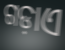
ଗଡ଼ାଏ